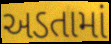
અડતામાં